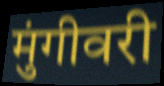
मुंगीवरी